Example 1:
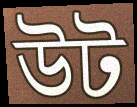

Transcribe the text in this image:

উট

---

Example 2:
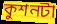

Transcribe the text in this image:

কুশনটা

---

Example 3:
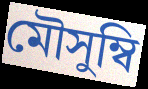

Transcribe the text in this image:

মৌসুম্বি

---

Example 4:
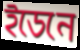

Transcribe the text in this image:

ইডেনে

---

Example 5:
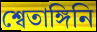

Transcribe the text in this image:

শ্বেতাঙ্গিনি